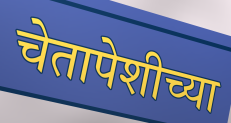
चेतापेशीच्या